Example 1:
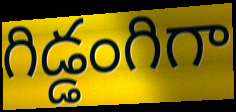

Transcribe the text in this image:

గిడ్డంగిగా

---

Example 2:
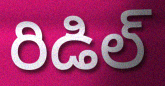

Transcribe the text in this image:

రిడిల్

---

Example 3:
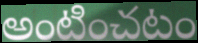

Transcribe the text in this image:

అంటించటం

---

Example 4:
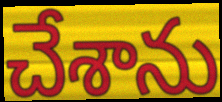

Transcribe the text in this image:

చేశాను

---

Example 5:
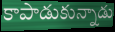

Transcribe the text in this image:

కాపాడుకున్నాడు